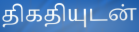
திகதியுடன்